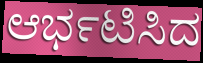
ಆರ್ಭಟಿಸಿದ